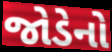
જોડેનો